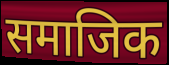
समाजिक